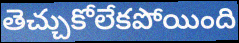
తెచ్చుకోలేకపోయింది